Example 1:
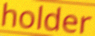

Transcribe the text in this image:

holder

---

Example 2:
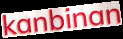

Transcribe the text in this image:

kanbinan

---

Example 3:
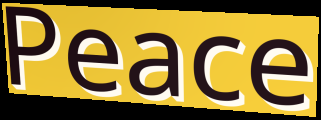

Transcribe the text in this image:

Peace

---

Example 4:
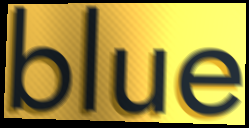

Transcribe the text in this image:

blue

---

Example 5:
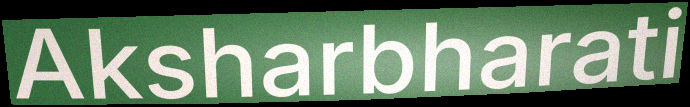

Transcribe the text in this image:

Aksharbharati